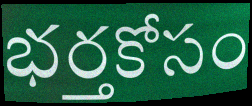
భర్తకోసం